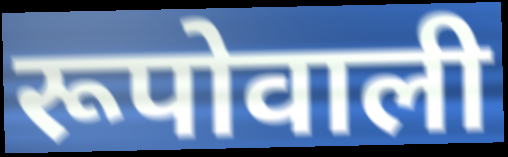
रूपोवाली